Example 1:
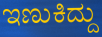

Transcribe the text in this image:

ಇಣುಕಿದ್ದು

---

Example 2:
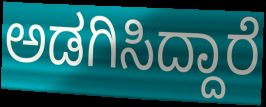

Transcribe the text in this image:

ಅಡಗಿಸಿದ್ದಾರೆ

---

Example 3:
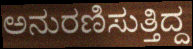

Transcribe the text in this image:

ಅನುರಣಿಸುತ್ತಿದ್ದ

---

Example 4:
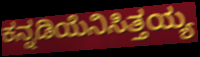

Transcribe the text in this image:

ಕನ್ನಡಿಯೆನಿಸಿತ್ತಯ್ಯ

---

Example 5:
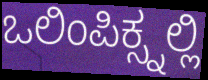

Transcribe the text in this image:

ಒಲಿಂಪಿಕ್ಸ್ನಲ್ಲಿ